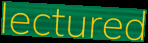
lectured